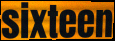
sixteen